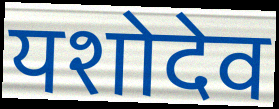
यशोदेव